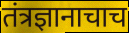
तंत्रज्ञानाचाच